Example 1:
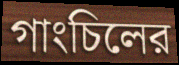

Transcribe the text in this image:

গাংচিলের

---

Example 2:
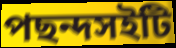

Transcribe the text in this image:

পছন্দসইটি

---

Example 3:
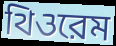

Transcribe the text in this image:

থিওরেম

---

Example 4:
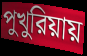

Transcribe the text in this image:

পুখুরিয়ায়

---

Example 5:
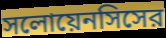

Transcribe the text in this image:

সলোয়েনসিসের